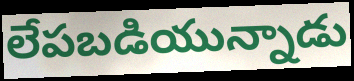
లేపబడియున్నాడు